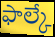
ఫాల్కే